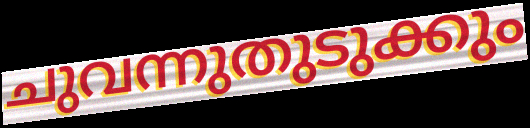
ചുവന്നുതുടുക്കും